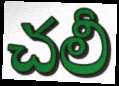
చలీ